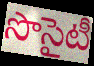
సొసైటీ